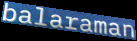
balaraman